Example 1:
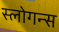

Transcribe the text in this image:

स्लोगन्स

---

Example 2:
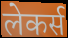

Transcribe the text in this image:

लेकर्स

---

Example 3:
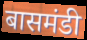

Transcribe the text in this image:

बासमंडी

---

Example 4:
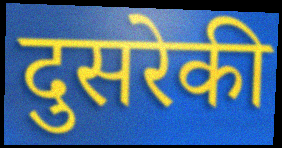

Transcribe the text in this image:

दुसरेकी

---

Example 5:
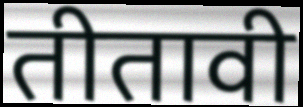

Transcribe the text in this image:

तीतावी